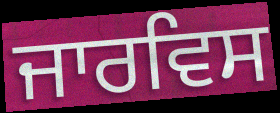
ਜਾਰਵਿਸ